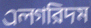
এলগরিদম